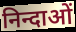
निन्दाओं